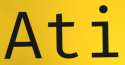
Ati